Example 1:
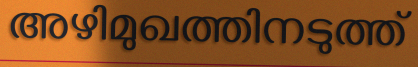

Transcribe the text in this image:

അഴിമുഖത്തിനടുത്ത്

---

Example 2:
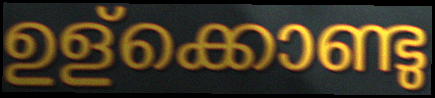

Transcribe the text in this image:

ഉള്ക്കൊണ്ടു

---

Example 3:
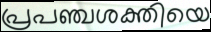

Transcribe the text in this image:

പ്രപഞ്ചശക്തിയെ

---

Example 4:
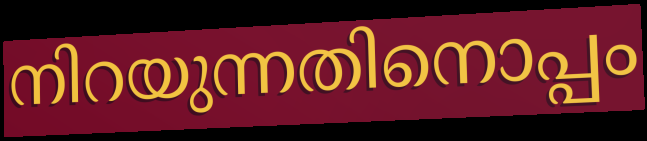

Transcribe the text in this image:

നിറയുന്നതിനൊപ്പം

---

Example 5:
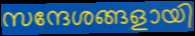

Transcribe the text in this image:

സന്ദേശങ്ങളായി